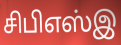
சிபிஎஸ்இ